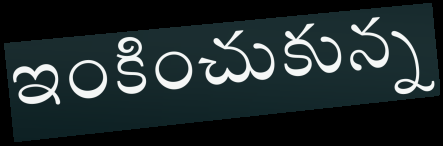
ఇంకించుకున్న